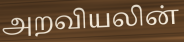
அறவியலின்